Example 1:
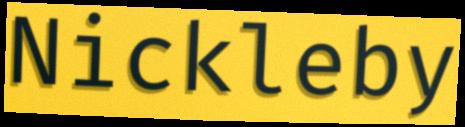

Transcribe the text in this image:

Nickleby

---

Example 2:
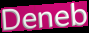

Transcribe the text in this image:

Deneb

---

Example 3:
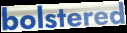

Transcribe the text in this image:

bolstered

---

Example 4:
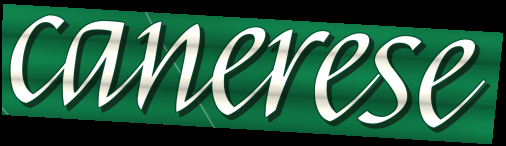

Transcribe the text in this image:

canerese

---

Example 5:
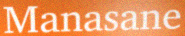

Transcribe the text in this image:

Manasane